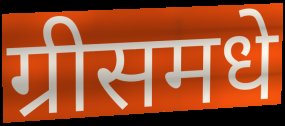
ग्रीसमधे